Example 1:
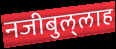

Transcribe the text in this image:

नजीबुल्लाह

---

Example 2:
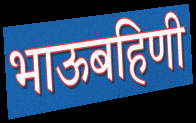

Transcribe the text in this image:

भाऊबहिणी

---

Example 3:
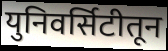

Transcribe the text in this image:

युनिवर्सिटीतून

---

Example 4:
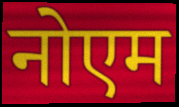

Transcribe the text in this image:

नोएम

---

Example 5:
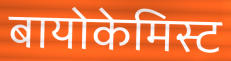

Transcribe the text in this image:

बायोकेमिस्ट